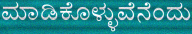
ಮಾಡಿಕೊಳ್ಳುವೆನೆಂದು